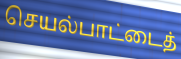
செயல்பாட்டைத்